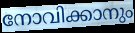
നോവിക്കാനും